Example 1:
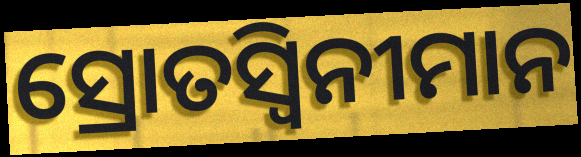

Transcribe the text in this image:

ସ୍ରୋତସ୍ୱିନୀମାନ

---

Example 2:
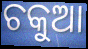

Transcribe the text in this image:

ଚକୁଆ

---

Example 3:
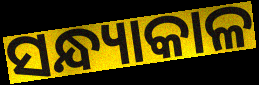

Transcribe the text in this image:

ସନ୍ଧ୍ୟାକାଳ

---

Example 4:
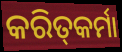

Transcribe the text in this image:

କରିତ୍‍କର୍ମା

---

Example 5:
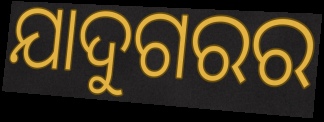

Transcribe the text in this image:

ଯାଦୁଗରର